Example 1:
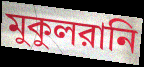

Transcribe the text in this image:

মুকুলরানি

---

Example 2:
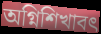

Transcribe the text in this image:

অগ্নিশিখাবৎ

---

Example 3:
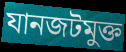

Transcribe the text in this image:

যানজটমুক্ত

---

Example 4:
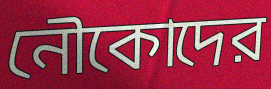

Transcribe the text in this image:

নৌকোদের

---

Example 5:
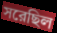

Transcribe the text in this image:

সরেছিল